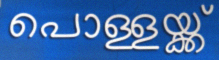
പൊള്ളയ്ക്ക്